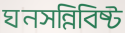
ঘনসন্নিবিষ্ট